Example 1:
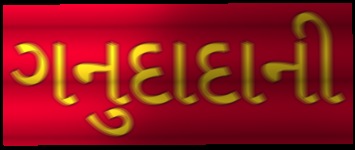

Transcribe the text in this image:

ગનુદાદાની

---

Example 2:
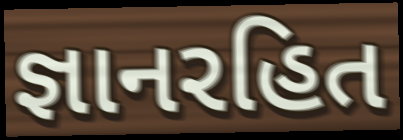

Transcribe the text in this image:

જ્ઞાનરહિત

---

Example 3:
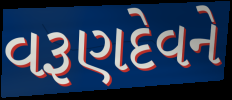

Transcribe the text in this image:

વરૂણદેવને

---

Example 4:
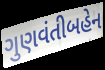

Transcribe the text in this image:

ગુણવંતીબહેન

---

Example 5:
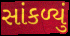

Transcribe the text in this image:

સાંકળ્યું